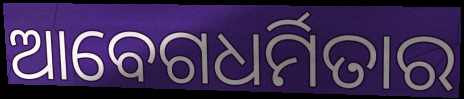
ଆବେଗଧର୍ମିତାର